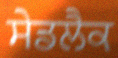
ਸੇਡਲੈਕ